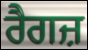
ਰੈਗਜ਼